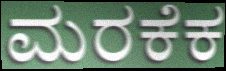
ಮರಕೆಕ